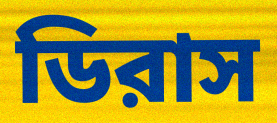
ডিরাস